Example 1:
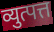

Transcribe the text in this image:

व्युत्पत्त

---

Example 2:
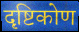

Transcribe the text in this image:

दृष्टिकोण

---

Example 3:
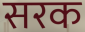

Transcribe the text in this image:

सरक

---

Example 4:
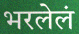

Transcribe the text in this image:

भरलेलं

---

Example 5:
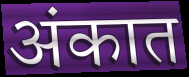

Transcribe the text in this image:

अंकात